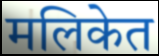
मलिकेत